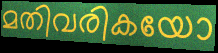
മതിവരികയോ